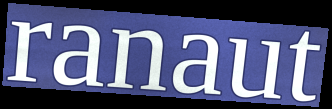
ranaut